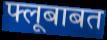
फ्लूबाबत